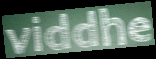
viddhe